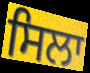
ਸਿਲਾ